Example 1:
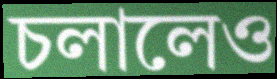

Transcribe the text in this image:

চলালেও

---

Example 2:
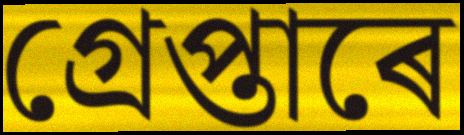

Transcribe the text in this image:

গ্ৰেপ্তাৰে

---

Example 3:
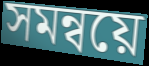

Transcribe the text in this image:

সমন্বয়ে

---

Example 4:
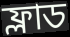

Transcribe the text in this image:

ফ্লাড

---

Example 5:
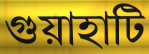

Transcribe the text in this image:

গুয়াহাটি